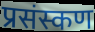
प्रसंस्कण